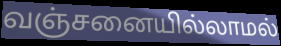
வஞ்சனையில்லாமல்